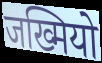
जख्मियो